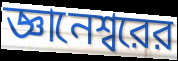
জ্ঞানেশ্বরের